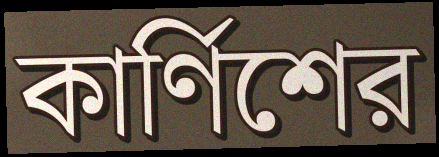
কার্ণিশের